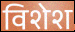
विशेश